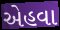
એહવા